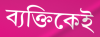
ব্যক্তিকেই